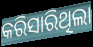
କରିସାରିଥିଲା